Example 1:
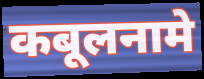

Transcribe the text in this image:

कबूलनामे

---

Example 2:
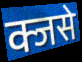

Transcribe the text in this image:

क्जसे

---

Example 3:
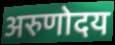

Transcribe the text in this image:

अरुणोदय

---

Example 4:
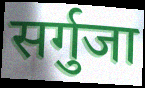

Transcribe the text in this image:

सर्गुजा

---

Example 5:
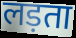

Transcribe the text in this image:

लड़ता